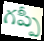
గప్పీ